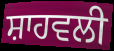
ਸ਼ਾਹਵਲੀ